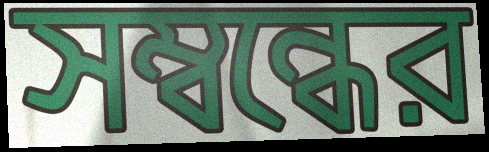
সম্বন্ধের